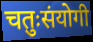
चतुःसंयोगी